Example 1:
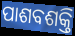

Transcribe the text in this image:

ପାଶବଶକ୍ତି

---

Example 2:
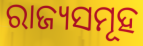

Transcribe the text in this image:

ରାଜ୍ୟସମୂହ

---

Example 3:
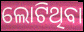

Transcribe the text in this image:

ଲୋଟିଥିବା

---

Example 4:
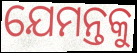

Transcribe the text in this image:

ଯେମନ୍ତକୁ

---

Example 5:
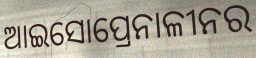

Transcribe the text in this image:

ଆଇସୋପ୍ରେନାଳୀନର